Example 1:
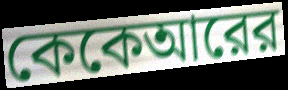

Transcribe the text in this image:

কেকেআরের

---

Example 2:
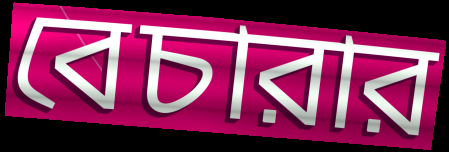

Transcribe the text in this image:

বেচারার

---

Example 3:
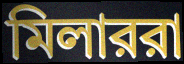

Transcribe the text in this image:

মিলাররা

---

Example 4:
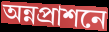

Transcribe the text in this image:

অন্নপ্রাশনে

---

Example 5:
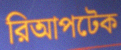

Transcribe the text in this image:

রিআপটেক